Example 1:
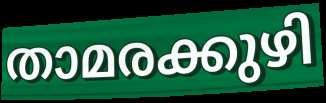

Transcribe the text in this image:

താമരക്കുഴി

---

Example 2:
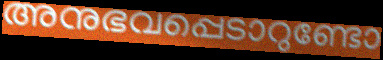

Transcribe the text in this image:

അനുഭവപ്പെടാറുണ്ടോ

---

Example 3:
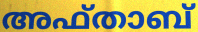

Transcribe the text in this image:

അഫ്താബ്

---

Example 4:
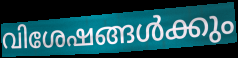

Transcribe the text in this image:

വിശേഷങ്ങൾക്കും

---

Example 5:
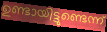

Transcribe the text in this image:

ഉണ്ടായിട്ടുണ്ടെന്ന്